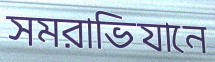
সমরাভিযানে